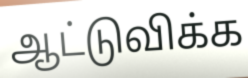
ஆட்டுவிக்க